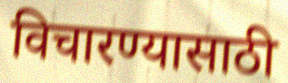
विचारण्यासाठी